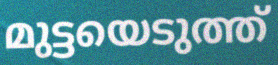
മുട്ടയെടുത്ത്